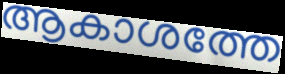
ആകാശത്തേ